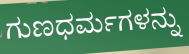
ಗುಣಧರ್ಮಗಳನ್ನು